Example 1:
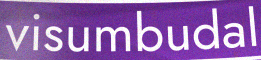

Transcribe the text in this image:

visumbudal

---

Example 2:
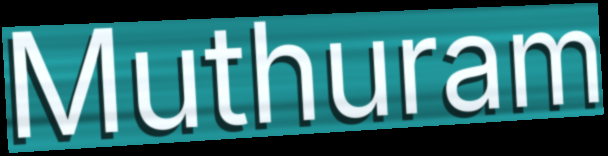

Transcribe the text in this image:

Muthuram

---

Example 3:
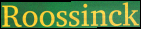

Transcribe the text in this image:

Roossinck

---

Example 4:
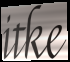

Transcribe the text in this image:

itke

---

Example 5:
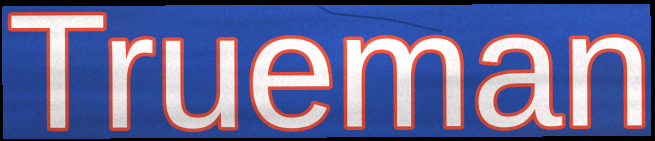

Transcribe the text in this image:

Trueman